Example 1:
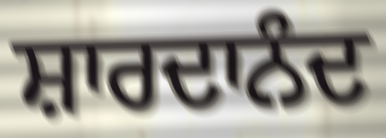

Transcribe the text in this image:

ਸ਼ਾਰਦਾਨੰਦ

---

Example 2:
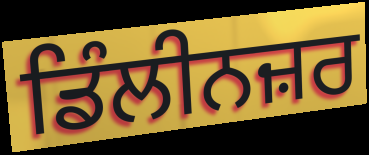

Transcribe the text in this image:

ਡਿੰਲੀਨਜ਼ਰ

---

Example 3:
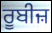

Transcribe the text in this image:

ਰੂਬੀਜ਼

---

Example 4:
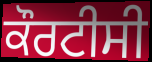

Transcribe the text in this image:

ਕੌਰਟੀਸੀ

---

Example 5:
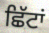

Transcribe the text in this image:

ਛਿੱਟਾਂ